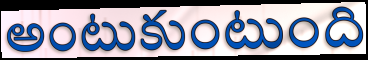
అంటుకుంటుంది